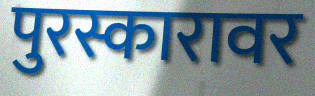
पुरस्कारावर